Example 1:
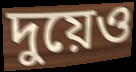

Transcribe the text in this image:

দুয়েও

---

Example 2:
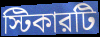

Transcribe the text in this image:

স্টিকারটি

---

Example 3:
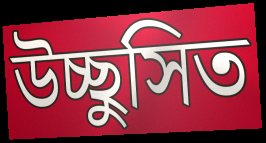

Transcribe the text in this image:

উচ্ছুসিত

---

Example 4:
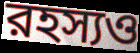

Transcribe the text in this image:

রহস্যও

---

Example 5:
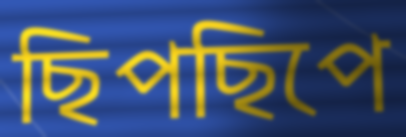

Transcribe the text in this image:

ছিপছিপে